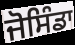
ਜੋਸਿੰਡਾ